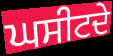
ਘਸੀਟਦੇ